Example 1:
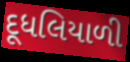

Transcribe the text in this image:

દૂધલિયાળી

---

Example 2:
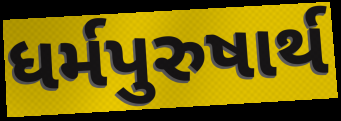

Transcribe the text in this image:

ધર્મપુરુષાર્થ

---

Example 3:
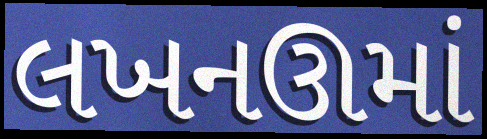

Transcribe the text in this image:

લખનઊમાં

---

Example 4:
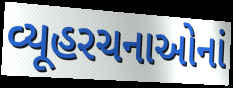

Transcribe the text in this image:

વ્યૂહરચનાઓનાં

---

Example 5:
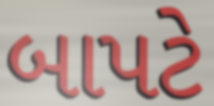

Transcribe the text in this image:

બાપટે